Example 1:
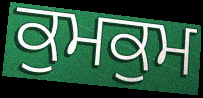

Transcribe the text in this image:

ਕੁਮਕੁਮ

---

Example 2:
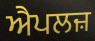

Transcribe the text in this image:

ਐਪਲਜ਼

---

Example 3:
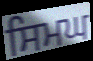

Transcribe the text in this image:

ਸਿਮਘ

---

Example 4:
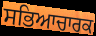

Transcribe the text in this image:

ਸਭਿਆਚਾਰਕ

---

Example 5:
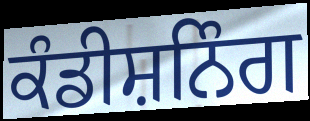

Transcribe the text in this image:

ਕੰਡੀਸ਼ਨਿੰਗ